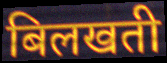
बिलखती